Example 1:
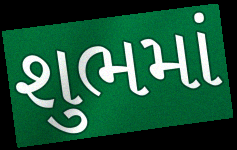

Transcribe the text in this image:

શુભમાં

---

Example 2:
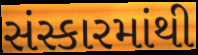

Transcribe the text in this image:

સંસ્કારમાંથી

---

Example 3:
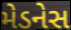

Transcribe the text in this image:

મેડનેસ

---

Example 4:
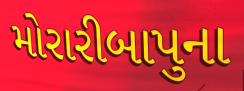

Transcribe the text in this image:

મોરારીબાપુના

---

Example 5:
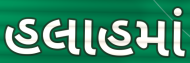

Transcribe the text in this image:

હલાહમાં